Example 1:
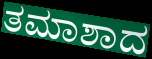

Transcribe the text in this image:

ತಮಾಶಾದ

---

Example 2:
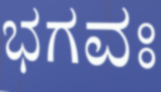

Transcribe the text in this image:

ಭಗವಃ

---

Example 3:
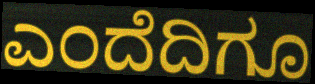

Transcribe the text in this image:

ಎಂದೆದಿಗೂ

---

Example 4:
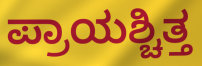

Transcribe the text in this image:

ಪ್ರಾಯಶ್ಚಿತ್ತ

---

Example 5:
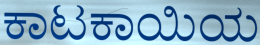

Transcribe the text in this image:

ಕಾಟಕಾಯಿಯ